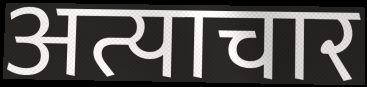
अत्याचार